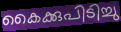
കൈക്കുപിടിച്ചു